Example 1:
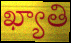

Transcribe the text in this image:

ఖ్యాతి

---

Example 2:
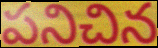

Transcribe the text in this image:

పనిచిన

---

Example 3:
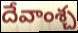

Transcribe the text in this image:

దేవాంశ్చ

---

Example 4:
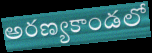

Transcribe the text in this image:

అరణ్యకాండలో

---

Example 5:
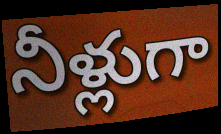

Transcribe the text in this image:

నీళ్లుగా